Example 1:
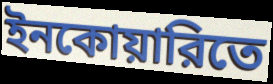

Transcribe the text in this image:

ইনকোয়ারিতে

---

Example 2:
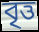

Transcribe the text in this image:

বৃত্ত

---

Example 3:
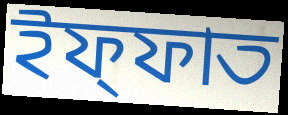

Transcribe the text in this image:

ইফ্ফাত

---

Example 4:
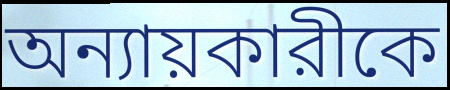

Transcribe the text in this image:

অন্যায়কারীকে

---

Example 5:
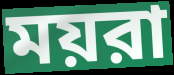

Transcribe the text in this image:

ময়রা